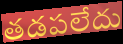
తడపలేదు